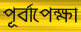
পূর্বাপেক্ষা